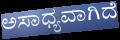
ಅಸಾಧ್ಯವಾಗಿದೆ